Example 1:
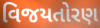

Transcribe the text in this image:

વિજયતોરણ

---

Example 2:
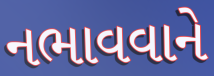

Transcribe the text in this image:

નભાવવાને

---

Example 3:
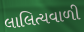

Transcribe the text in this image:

લાલિત્યવાળી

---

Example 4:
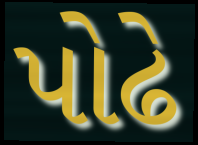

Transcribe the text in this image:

પોઢે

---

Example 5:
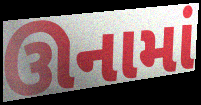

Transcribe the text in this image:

ઊનામાં